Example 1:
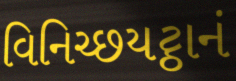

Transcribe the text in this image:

વિનિચ્છયટ્ઠાનં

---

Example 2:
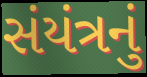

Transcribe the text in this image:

સંયંત્રનું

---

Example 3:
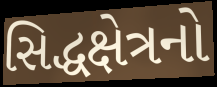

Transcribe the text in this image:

સિદ્ધક્ષેત્રનો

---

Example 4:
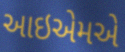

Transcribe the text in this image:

આઇએમએ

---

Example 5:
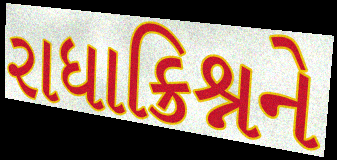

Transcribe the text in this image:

રાધાક્રિશ્નને